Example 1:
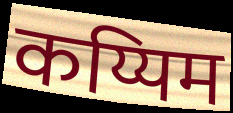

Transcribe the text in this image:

कय्यिम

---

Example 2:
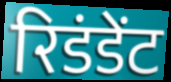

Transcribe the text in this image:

रिडंडेंट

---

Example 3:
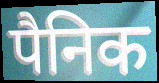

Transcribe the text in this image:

पैनिक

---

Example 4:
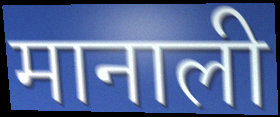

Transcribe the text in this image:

मानाली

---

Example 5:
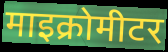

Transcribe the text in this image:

माइक्रोमीटर